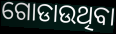
ଗୋଡାଉଥିବା